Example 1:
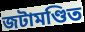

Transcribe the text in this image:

জটামণ্ডিত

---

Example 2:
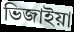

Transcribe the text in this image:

ভিজাইয়া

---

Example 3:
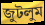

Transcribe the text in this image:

জুটলুম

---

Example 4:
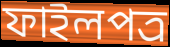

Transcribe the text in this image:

ফাইলপত্র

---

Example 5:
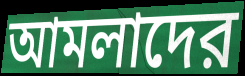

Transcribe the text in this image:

আমলাদের